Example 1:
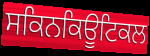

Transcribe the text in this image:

ਸਕਿਨਕਿਊਟਿਕਲ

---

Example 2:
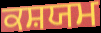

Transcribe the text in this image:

ਕਸ਼ਯਮ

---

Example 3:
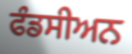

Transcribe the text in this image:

ਫੰਡਸੀਅਨ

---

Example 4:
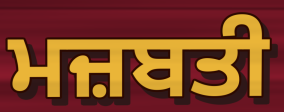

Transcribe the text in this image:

ਮਜ਼ਬਤੀ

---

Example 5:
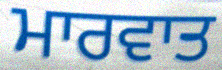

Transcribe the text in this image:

ਮਾਰਵਾਤ